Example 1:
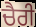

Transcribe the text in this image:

ਚੈਰੀ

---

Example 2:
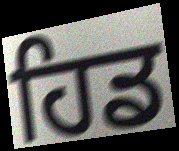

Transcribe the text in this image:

ਹਿਡ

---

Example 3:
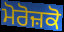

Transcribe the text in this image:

ਮੋਰੋਜ਼ਕੋ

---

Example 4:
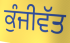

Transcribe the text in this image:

ਕੁੰਜੀਵੱਤ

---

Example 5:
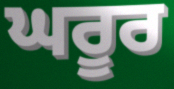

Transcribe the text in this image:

ਘਰੂਰ